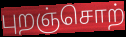
புறஞ்சொற்